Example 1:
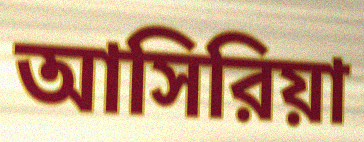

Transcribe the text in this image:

আসিরিয়া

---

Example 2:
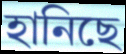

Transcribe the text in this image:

হানিছে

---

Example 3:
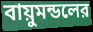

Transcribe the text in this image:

বায়ুমন্ডলের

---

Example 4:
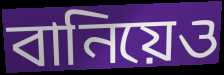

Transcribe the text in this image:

বানিয়েও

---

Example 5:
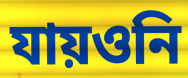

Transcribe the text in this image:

যায়ওনি